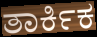
ತಾರ್ಕಿಕ